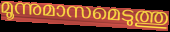
മൂന്നുമാസമെടുത്തു